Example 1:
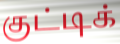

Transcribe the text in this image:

குட்டிக்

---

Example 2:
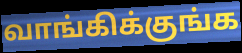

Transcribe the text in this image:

வாங்கிக்குங்க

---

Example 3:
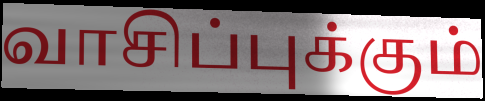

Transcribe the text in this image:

வாசிப்புக்கும்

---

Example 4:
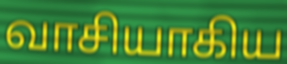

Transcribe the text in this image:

வாசியாகிய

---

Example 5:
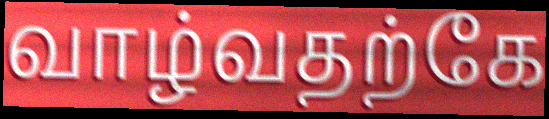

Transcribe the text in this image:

வாழ்வதற்கே